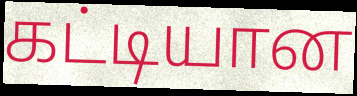
கட்டியான